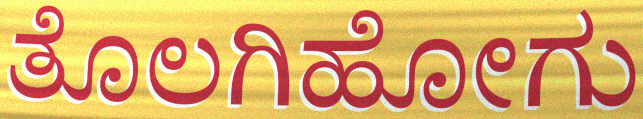
ತೊಲಗಿಹೋಗು